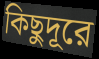
কিছুদূরে